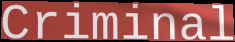
Criminal